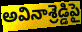
అవినాశ్రెడ్డిపై